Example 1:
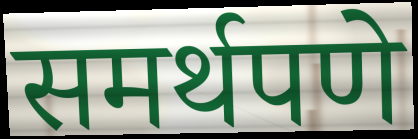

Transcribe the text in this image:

समर्थपणे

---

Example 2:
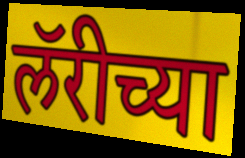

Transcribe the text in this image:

लॅरीच्या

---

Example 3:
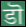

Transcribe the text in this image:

डॊ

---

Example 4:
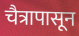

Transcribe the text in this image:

चैत्रापासून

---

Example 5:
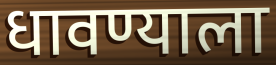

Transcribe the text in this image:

धावण्याला